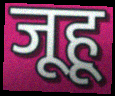
जूहू